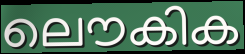
ലൌകിക